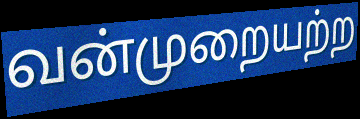
வன்முறையற்ற